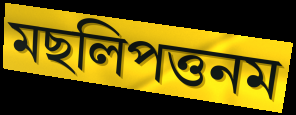
মছলিপত্তনম